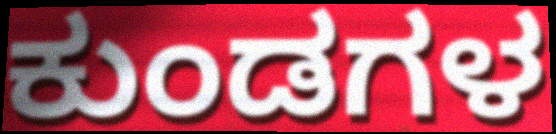
ಕುಂಡಗಳ